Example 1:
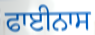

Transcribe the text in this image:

ਫਾਈਨਾਸ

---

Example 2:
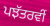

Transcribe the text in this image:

ਪਝੱਤਰਵੀਂ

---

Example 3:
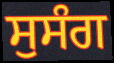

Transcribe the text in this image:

ਸੁਸੰਗ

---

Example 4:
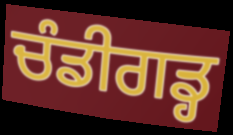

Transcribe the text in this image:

ਚੰਡੀਗਡ੍ਹ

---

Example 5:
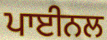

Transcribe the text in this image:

ਪਾਈਨਲ